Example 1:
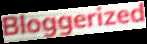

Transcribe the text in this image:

Bloggerized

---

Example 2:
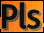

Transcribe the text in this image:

Pls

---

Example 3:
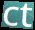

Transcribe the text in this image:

ct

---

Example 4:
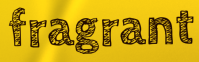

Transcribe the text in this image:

fragrant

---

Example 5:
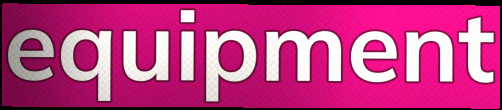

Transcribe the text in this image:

equipment